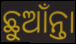
ଛୁଆଁନ୍ତା